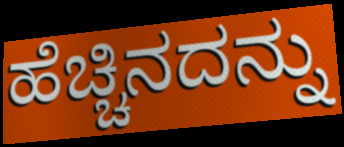
ಹೆಚ್ಚಿನದನ್ನು